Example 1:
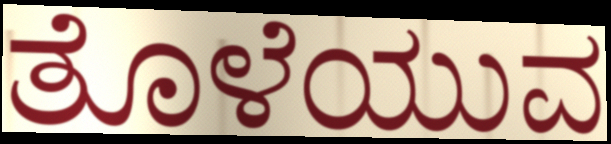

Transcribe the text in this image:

ತೊಳೆಯುವ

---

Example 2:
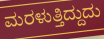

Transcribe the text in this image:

ಮರಳುತ್ತಿದ್ದುದು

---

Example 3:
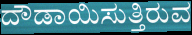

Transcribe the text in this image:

ದೌಡಾಯಿಸುತ್ತಿರುವ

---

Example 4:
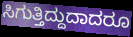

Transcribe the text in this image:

ಸಿಗುತ್ತಿದ್ದುದಾದರೂ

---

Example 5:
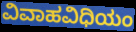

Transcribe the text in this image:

ವಿವಾಹವಿಧಿಯಂ